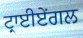
ਟ੍ਰਾਈਏਂਗਲ